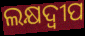
ଲକ୍ଷଦ୍ୱୀପ